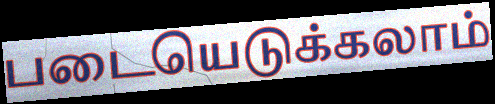
படையெடுக்கலாம்